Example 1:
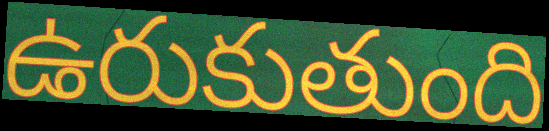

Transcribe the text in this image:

ఉరుకుతుంది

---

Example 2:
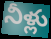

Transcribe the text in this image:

నీళ్లు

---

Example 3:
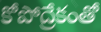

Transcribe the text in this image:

కోపోద్రేకంతో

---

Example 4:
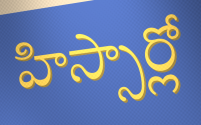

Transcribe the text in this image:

హిస్సార్లో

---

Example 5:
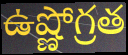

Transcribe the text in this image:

ఉష్ణోగ్రత